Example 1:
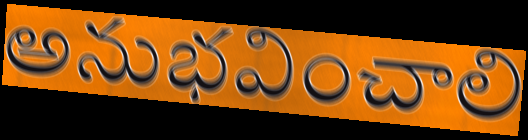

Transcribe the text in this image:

అనుభవించాలి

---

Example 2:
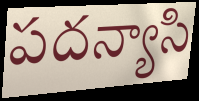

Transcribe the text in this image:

పదన్యాసి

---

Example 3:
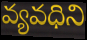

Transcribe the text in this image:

వ్యవధిని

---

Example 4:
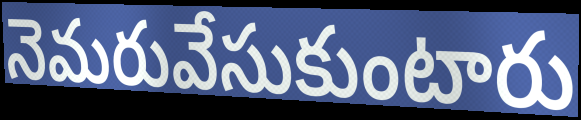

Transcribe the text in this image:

నెమరువేసుకుంటారు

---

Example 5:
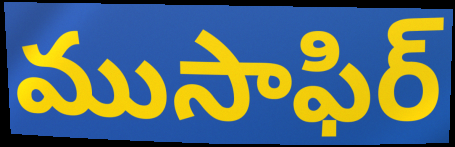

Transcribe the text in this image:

ముసాఫిర్